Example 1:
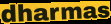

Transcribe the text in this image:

dharmas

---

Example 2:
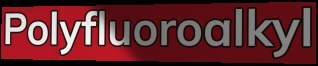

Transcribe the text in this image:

Polyfluoroalkyl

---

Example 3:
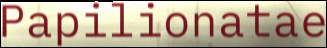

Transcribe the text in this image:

Papilionatae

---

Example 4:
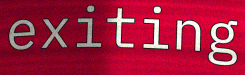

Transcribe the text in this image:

exiting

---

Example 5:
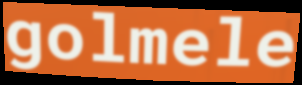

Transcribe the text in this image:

golmele